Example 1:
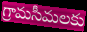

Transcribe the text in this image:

గ్రామసీమలకు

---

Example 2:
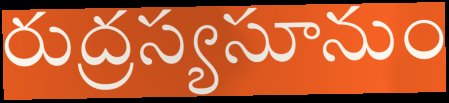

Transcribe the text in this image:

రుద్రస్యసూనుం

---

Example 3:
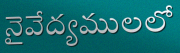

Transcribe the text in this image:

నైవేద్యములలో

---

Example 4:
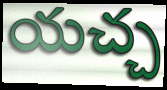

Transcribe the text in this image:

యచ్చ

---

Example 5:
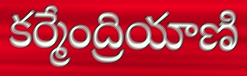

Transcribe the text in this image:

కర్మేంద్రియాణి